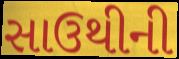
સાઉથીની